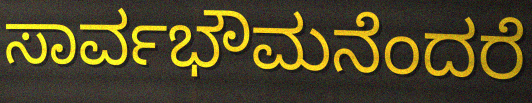
ಸಾರ್ವಭೌಮನೆಂದರೆ